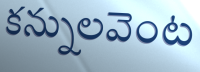
కన్నులవెంట